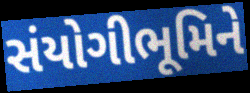
સંયોગીભૂમિને